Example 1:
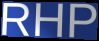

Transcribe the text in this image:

RHP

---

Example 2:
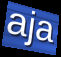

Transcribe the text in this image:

aja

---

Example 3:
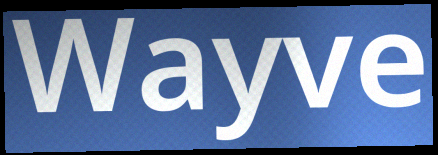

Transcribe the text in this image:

Wayve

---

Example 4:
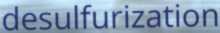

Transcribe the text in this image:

desulfurization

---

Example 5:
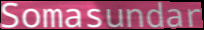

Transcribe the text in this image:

Somasundar